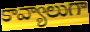
కావ్యాలుగా